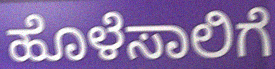
ಹೊಳೆಸಾಲಿಗೆ